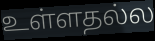
உள்ளதல்ல